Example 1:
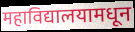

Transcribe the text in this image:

महाविद्यालयामधून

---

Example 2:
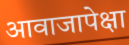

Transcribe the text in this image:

आवाजापेक्षा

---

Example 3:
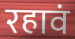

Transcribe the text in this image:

रहावं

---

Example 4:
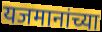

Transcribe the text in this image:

यजमानांच्या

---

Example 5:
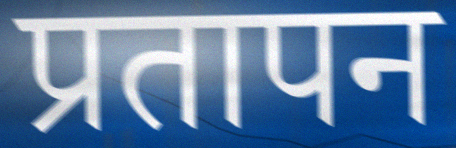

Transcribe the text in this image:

प्रतापन